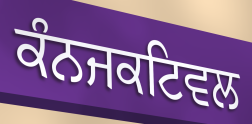
ਕੰਨਜਕਟਿਵਲ